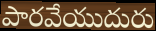
పారవేయుదురు